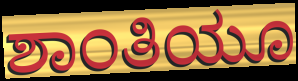
ಶಾಂತಿಯೂ